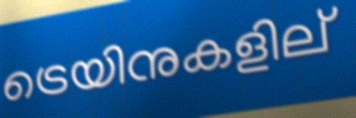
ട്രെയിനുകളില്